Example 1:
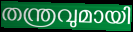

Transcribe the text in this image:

തന്ത്രവുമായി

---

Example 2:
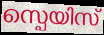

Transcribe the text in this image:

സ്പെയിസ്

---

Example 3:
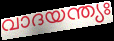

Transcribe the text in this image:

വാദയന്ത്യഃ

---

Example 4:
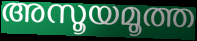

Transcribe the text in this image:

അസൂയമൂത്ത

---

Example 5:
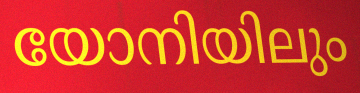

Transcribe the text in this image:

യോനിയിലും